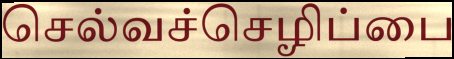
செல்வச்செழிப்பை